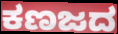
ಕಣಜದ